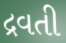
દ્રવતી